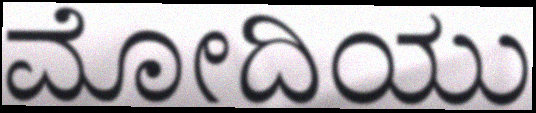
ಮೋದಿಯು